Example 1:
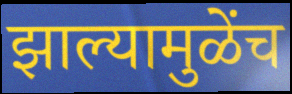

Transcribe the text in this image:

झाल्यामुळेंच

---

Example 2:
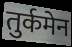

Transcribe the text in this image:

तुर्कमेन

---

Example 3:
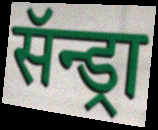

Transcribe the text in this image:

सॅन्ड्रा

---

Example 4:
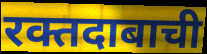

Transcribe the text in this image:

रक्तदाबाची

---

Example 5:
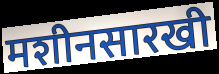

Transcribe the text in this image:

मशीनसारखी